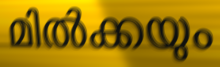
മിൽക്കയും